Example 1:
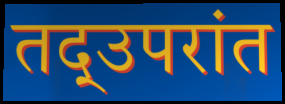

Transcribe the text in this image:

तद्उपरांत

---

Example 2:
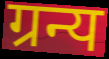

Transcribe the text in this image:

ग्रन्य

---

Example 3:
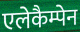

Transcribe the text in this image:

एलेकैम्पेन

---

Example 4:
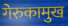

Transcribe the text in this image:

गेरुकामुख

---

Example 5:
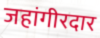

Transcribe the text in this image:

जहांगीरदार